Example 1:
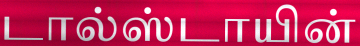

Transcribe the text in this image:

டால்ஸ்டாயின்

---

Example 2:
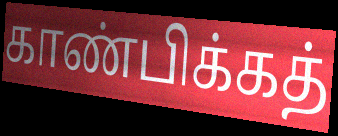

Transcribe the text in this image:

காண்பிக்கத்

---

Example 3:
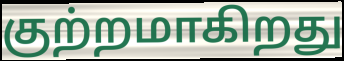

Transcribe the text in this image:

குற்றமாகிறது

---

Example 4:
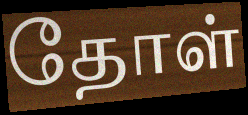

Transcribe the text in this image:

தோள்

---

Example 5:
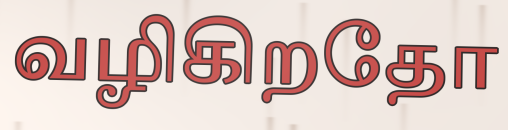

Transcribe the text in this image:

வழிகிறதோ